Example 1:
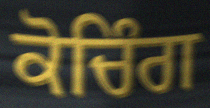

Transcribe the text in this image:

ਕੋਚਿੰਗ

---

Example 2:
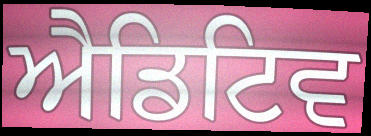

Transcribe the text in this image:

ਐਡਿਟਿਵ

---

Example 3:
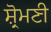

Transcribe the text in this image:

ਸ਼੍ਰੋਮਣੀ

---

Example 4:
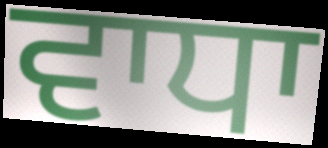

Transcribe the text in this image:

ਵਾਧਾ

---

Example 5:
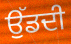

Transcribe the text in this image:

ਉੱਡਦੀ